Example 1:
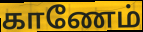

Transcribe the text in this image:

காணேம்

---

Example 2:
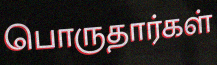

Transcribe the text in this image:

பொருதார்கள்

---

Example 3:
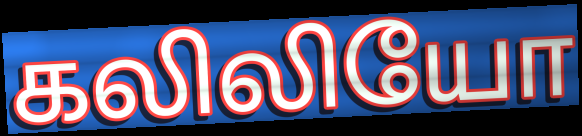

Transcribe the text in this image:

கலிலியோ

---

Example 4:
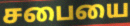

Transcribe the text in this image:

சபையை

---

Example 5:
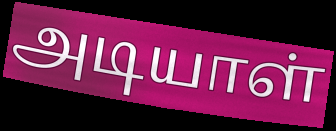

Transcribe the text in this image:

அடியாள்